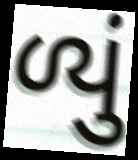
ળ્યું